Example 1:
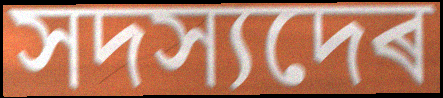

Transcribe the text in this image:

সদস্যদেৰ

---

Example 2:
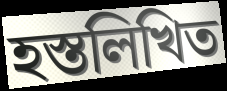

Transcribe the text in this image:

হস্তলিখিত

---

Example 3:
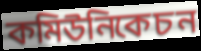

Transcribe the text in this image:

কমিউনিকেচন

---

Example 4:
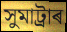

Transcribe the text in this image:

সুমাট্ৰাৰ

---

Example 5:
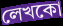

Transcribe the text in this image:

লেখকো